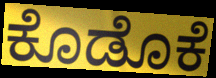
ಕೊಡೊಕೆ